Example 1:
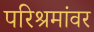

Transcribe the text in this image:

परिश्रमांवर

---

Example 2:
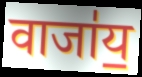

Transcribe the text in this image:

वाजा॑य॒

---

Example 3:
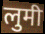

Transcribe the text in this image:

लुमी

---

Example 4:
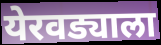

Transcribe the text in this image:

येरवड्याला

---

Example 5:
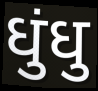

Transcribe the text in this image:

धुंधु